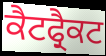
ਕੈਟਫ੍ਰੈਕਟ